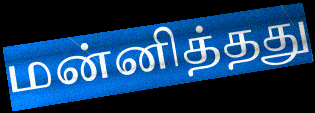
மன்னித்தது